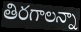
తిరగాలన్నా